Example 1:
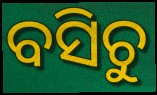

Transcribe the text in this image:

ବସିଚୁ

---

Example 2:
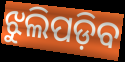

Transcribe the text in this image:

ଝୁଲିପଡ଼ିବ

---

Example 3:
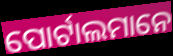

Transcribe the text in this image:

ପୋର୍ଟାଲମାନେ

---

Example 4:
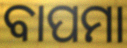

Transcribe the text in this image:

ବାପମା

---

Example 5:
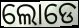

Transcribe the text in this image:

ଲୋଡେ